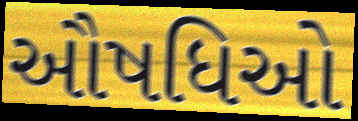
ઔષધિઓ